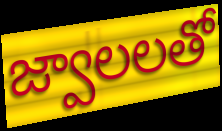
జ్వాలలతో